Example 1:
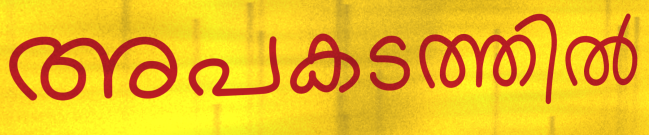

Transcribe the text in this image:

അപകടത്തിൽ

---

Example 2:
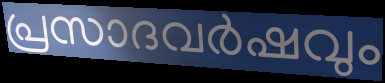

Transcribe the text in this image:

പ്രസാദവർഷവും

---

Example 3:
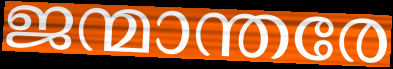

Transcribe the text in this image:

ജന്മാന്തരേ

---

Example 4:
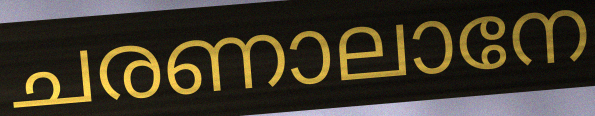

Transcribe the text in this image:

ചരണാലാനേ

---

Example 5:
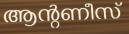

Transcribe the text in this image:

ആന്റണീസ്